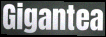
Gigantea